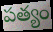
పత్యం